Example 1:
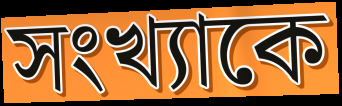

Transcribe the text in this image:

সংখ্যাকে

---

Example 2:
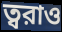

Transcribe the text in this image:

ত্বরাও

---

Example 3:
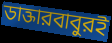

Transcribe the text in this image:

ডাক্তারবাবুরই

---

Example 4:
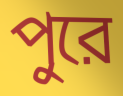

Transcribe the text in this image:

পুরে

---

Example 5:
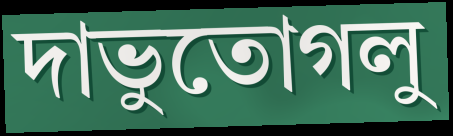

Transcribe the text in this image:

দাভুতোগলু